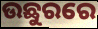
ଉଛୁରରେ